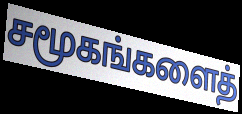
சமூகங்களைத்